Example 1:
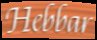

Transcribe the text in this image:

Hebbar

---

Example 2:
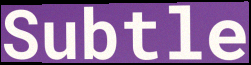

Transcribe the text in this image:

Subtle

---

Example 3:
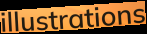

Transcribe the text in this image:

illustrations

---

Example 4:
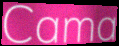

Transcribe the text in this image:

Cama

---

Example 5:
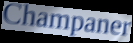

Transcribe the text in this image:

Champaner